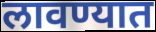
लावण्यात